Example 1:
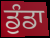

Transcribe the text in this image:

ਡੁੰਡਾ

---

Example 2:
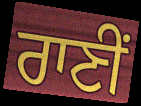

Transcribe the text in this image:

ਰਾਣੀਂ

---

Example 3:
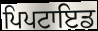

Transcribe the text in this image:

ਪਿਪਟਾਇਡ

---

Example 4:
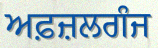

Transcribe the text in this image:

ਅਫ਼ਜ਼ਲਗੰਜ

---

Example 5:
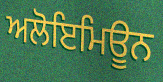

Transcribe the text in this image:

ਅਲੋਇਮਿਊਨ